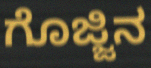
ಗೊಜ್ಜಿನ